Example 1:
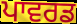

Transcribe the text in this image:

ਪਾਵਰਡ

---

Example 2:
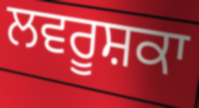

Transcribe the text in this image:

ਲਵਰੂਸ਼ਕਾ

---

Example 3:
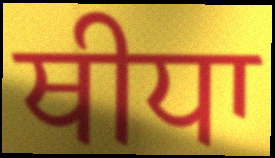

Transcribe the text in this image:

ਥੀਧਾ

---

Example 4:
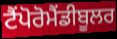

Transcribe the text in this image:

ਟੈਂਪੋਰੋਮੈਂਡੀਬੂਲਰ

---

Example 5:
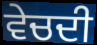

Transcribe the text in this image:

ਵੇਚਦੀ